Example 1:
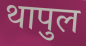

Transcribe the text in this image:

थापुल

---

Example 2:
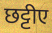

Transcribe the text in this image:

छट्टीए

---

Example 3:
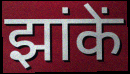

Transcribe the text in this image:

झांकें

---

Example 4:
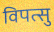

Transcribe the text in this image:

विपत्सु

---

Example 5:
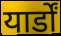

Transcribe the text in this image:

यार्डों